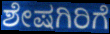
ಶೇಷಗಿರಿಗೆ